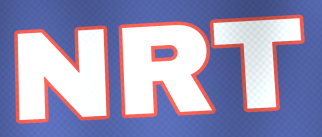
NRT